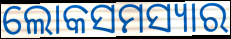
ଲୋକସମସ୍ୟାର